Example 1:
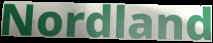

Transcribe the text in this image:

Nordland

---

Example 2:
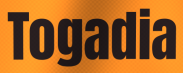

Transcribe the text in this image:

Togadia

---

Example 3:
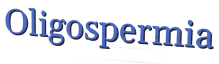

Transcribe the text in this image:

Oligospermia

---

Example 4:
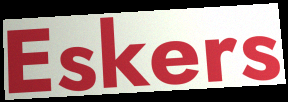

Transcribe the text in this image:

Eskers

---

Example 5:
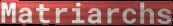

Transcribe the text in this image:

Matriarchs